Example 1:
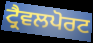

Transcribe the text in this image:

ਟ੍ਰੈਵਲਪੋਰਟ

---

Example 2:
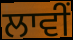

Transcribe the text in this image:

ਲਾਵੀਂ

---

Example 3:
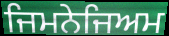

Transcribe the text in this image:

ਜਿਮਨੇਜਿਅਮ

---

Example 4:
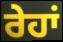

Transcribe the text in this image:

ਰੇਹਾਂ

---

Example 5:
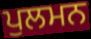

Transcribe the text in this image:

ਪੁਲਮਨ